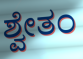
ಶ್ವೇತಂ